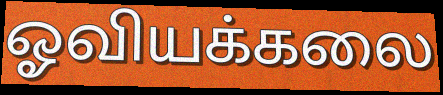
ஓவியக்கலை